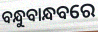
ବନ୍ଧୁବାନ୍ଧବରେ